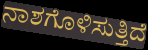
ನಾಶಗೊಳಿಸುತ್ತಿದೆ